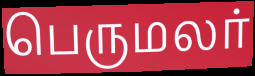
பெருமலர்